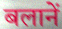
बलानें